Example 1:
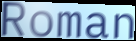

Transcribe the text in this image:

Roman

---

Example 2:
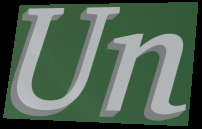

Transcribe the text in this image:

Un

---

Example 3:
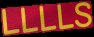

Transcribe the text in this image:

LLLLS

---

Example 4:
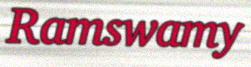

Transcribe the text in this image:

Ramswamy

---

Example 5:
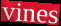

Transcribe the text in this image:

vines